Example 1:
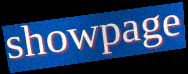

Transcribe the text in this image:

showpage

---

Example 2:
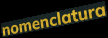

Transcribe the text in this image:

nomenclatura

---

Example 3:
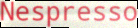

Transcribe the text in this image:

Nespresso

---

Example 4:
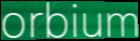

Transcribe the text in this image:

orbium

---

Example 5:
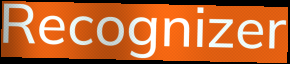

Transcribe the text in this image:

Recognizer